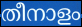
തീനാളം